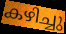
കഴിച്ചു